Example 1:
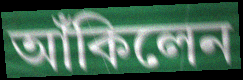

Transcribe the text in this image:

আঁকিলেন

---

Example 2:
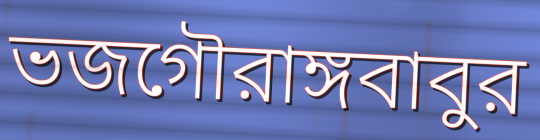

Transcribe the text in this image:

ভজগৌরাঙ্গবাবুর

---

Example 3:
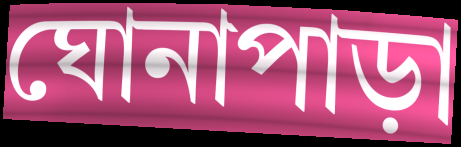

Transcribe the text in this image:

ঘোনাপাড়া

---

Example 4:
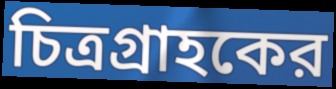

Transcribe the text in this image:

চিত্রগ্রাহকের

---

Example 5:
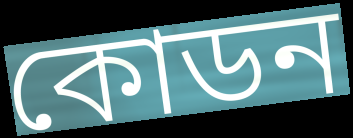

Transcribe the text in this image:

কোডন